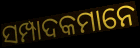
ସମ୍ପାଦକମାନେ